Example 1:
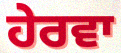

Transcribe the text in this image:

ਹੇਰਵਾ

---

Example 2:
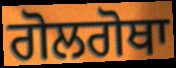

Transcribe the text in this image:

ਗੋਲਗੋਥਾ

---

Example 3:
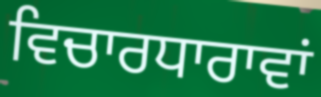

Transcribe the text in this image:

ਵਿਚਾਰਧਾਰਾਵਾਂ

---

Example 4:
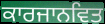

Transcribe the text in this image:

ਕਾਰਜਾਨਵਿਤ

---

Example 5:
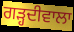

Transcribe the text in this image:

ਗਡ਼੍ਹਦੀਵਾਲਾ